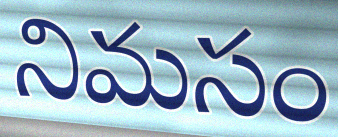
నిమసం